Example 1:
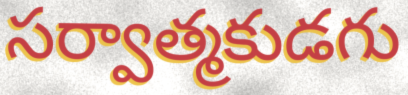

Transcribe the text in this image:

సర్వాత్మకుడగు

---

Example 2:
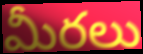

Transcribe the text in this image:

మీరలు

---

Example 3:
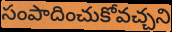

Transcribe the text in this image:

సంపాదించుకోవచ్చని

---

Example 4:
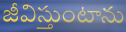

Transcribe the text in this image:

జీవిస్తుంటాను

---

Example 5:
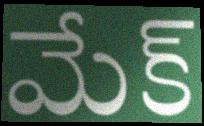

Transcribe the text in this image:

మేక్